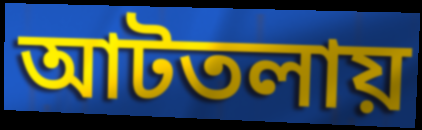
আটতলায়